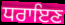
ਧਰਾਇਣ